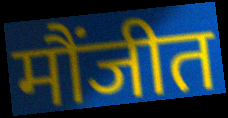
मौंजीत